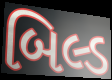
બિલ્ડ